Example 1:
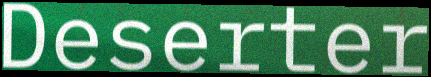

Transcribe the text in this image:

Deserter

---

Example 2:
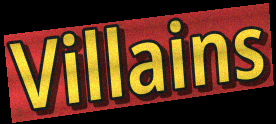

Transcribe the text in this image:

Villains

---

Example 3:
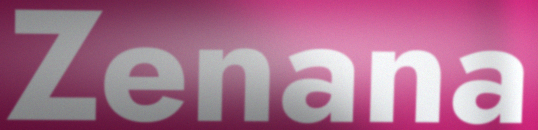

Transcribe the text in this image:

Zenana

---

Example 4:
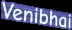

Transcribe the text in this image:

Venibhai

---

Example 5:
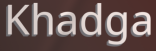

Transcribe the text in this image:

Khadga